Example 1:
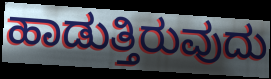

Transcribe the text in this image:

ಹಾಡುತ್ತಿರುವುದು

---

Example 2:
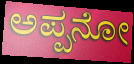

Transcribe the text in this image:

ಅಪ್ಪನೋ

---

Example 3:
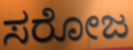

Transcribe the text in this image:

ಸರೋಜ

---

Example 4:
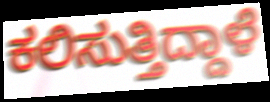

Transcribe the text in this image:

ಕಲಿಸುತ್ತಿದ್ದಾಳೆ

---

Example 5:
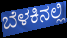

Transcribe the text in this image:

ಬೆಳಕಿನಲ್ಲಿ